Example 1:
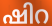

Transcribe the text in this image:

ഷിറ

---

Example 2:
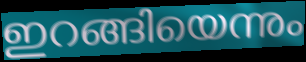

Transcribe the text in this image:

ഇറങ്ങിയെന്നും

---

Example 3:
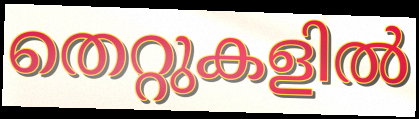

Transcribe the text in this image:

തെറ്റുകളിൽ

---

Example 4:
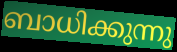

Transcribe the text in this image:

ബാധിക്കുന്നു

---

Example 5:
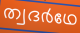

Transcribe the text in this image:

ത്വദർഥേ